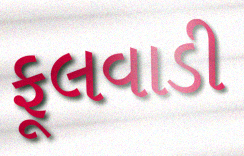
ફૂલવાડી